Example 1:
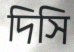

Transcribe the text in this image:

দিসি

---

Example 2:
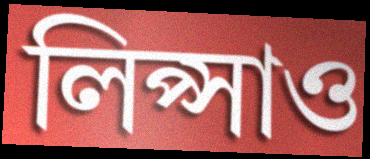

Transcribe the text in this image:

লিপ্সাও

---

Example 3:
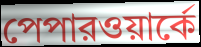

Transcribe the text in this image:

পেপারওয়ার্কে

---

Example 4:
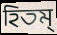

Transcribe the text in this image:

হিতম্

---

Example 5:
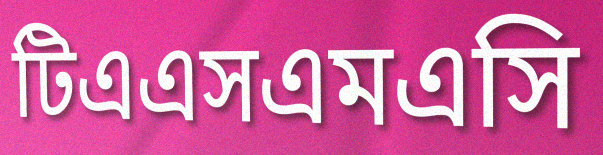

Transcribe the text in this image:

টিএএসএমএসি